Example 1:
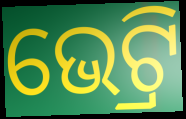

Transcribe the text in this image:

ଭେଟ୍ରି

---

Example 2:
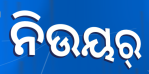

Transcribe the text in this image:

ନିଉୟର୍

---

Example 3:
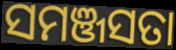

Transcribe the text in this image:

ସମଞ୍ଜସତା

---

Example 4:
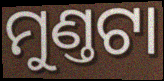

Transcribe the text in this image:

ମୁଣ୍ତଟା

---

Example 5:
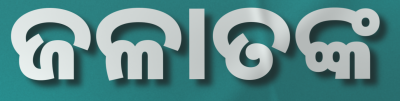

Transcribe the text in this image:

ଜଳାତଙ୍କ